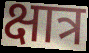
क्षात्र